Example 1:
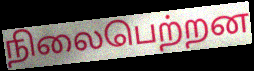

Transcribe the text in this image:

நிலைபெற்றன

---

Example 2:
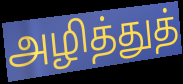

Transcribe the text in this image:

அழித்துத்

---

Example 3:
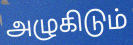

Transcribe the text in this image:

அழுகிடும்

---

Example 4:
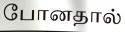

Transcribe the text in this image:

போனதால்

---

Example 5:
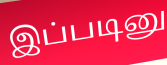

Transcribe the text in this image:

இப்படினு